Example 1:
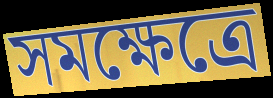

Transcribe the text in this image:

সমক্ষেত্রে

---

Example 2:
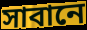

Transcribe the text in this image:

সাবানে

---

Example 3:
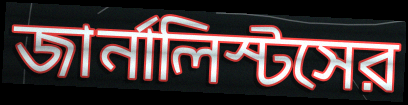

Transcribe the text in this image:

জার্নালিস্টসের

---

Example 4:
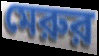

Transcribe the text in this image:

মেরুর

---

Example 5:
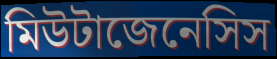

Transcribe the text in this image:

মিউটাজেনেসিস